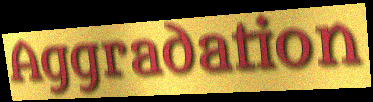
Aggradation